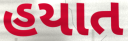
હયાત